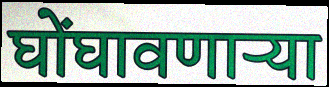
घोंघावणाऱ्या